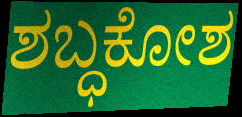
ಶಬ್ಧಕೋಶ